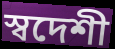
স্বদেশী